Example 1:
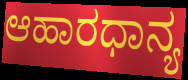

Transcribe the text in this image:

ಆಹಾರಧಾನ್ಯ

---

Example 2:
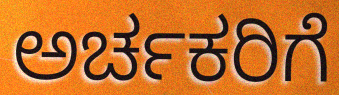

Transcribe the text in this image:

ಅರ್ಚಕರಿಗೆ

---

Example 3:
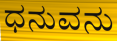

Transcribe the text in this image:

ಧನುವನು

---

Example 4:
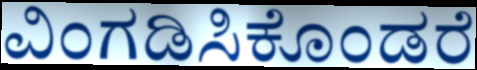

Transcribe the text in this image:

ವಿಂಗಡಿಸಿಕೊಂಡರೆ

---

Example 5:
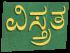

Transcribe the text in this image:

ವಿಸ್ತ್ರತ